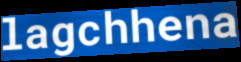
lagchhena